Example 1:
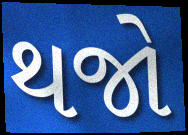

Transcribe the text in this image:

થજો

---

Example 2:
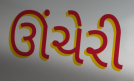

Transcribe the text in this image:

ઊંચેરી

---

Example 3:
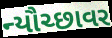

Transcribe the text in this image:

ન્યૌચ્છાવર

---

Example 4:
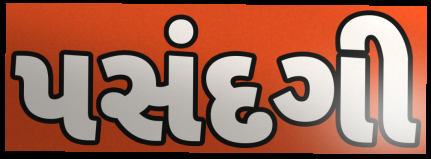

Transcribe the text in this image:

પસંદગી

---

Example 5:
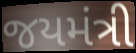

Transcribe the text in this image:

જયમંત્રી